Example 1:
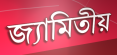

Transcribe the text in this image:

জ্যামিতীয়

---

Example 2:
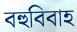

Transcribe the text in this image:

বহুবিবাহ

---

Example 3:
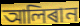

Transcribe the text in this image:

আলিৰান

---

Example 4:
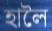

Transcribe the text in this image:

হালৈ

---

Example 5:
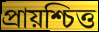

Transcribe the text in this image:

প্ৰায়শ্চিত্ত